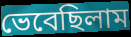
ভেবেছিলাম